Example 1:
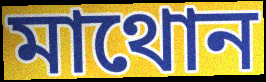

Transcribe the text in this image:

মাথোন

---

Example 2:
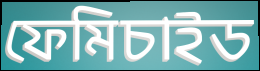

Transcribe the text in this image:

ফেমিচাইড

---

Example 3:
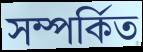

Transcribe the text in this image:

সম্পৰ্কিত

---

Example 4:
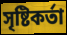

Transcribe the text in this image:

সৃষ্টিকৰ্তা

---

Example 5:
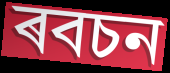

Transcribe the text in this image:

ৰবচন